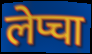
लेप्चा